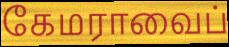
கேமராவைப்